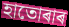
হাতোৰাৰ